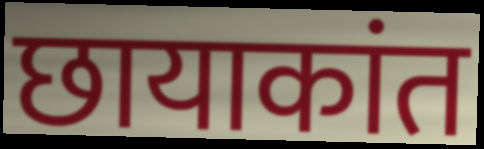
छायाकांत